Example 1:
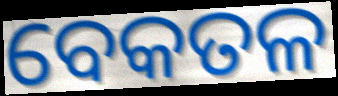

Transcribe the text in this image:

ବେକତଳ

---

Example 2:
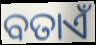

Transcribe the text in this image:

ବତାଏଁ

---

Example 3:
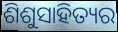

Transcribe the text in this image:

ଶିଶୁସାହିତ୍ୟର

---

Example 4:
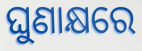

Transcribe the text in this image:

ଘୁଣାକ୍ଷରେ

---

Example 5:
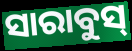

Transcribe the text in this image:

ସାରାବୁସ୍